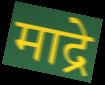
माद्रे